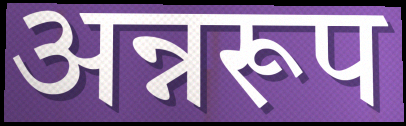
अन्नरूप